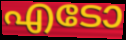
എടോ